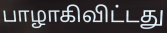
பாழாகிவிட்டது